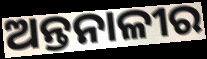
ଅନ୍ତନାଳୀର